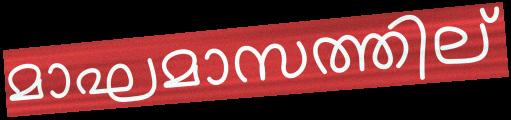
മാഘമാസത്തില്